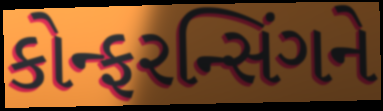
કોન્ફરન્સિંગને